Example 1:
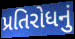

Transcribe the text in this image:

પ્રતિરોધનું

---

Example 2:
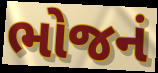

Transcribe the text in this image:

ભોજનં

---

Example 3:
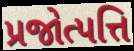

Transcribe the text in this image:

પ્રજોત્પત્તિ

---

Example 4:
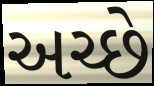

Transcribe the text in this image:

અચ્છે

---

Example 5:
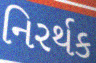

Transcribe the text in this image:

નિરર્થક